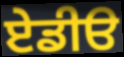
ਏਡੀੳ